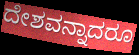
ದೇಶವನ್ನಾದರೂ